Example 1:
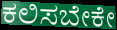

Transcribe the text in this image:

ಕಲಿಸಬೇಕೇ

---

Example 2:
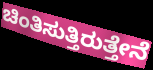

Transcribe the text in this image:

ಚಿಂತಿಸುತ್ತಿರುತ್ತೇನೆ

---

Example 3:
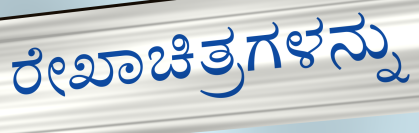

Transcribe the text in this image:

ರೇಖಾಚಿತ್ರಗಳನ್ನು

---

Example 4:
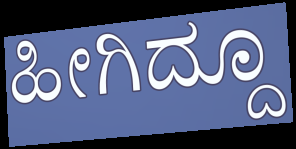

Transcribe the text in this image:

ಹೀಗಿದ್ದೂ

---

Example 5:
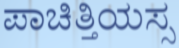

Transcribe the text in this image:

ಪಾಚಿತ್ತಿಯಸ್ಸ